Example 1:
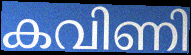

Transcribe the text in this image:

കവിണി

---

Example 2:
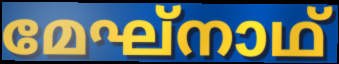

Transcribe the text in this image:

മേഘ്നാഥ്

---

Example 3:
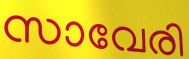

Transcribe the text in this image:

സാവേരി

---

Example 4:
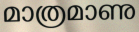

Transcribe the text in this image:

മാത്രമാണു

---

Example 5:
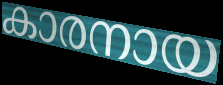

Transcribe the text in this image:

കാരനായ